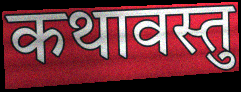
कथावस्‍तु